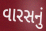
વારસનું